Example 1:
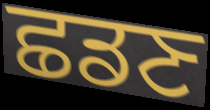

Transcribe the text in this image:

ਛਡਣ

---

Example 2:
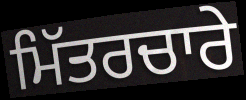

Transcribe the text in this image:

ਮਿੱਤਰਚਾਰੇ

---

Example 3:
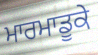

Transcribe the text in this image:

ਮਾਰਮਾਡੂਕੇ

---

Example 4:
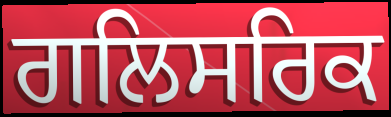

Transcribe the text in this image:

ਗਲਿਸਰਿਕ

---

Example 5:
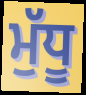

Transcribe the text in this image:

ਮੁੱਧੂ